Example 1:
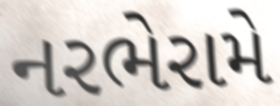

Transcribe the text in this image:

નરભેરામે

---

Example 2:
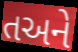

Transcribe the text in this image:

તઅને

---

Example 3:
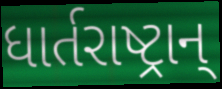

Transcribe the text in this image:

ધાર્તરાષ્ટ્રાન્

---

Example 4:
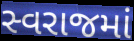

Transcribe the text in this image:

સ્વરાજમાં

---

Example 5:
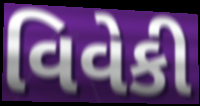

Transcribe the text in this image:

વિવેકી